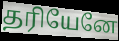
தரியேனே